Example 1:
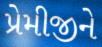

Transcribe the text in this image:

પ્રેમીજીને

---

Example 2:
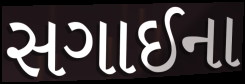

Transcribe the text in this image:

સગાઈના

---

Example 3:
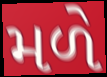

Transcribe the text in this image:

મળે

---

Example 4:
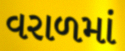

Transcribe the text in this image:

વરાળમાં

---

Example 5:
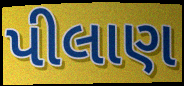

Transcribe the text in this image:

પીલાણ